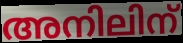
അനിലിന്